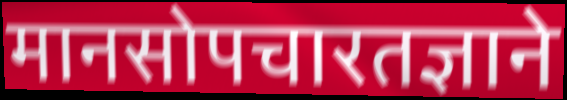
मानसोपचारतज्ञाने